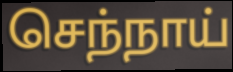
செந்நாய்